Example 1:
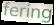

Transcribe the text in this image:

fering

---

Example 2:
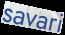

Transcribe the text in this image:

savari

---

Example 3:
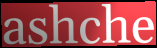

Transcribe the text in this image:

ashche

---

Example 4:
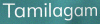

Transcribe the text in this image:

Tamilagam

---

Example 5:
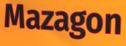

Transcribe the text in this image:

Mazagon